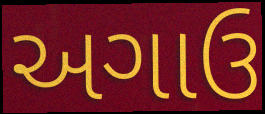
અગાઉ